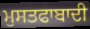
ਮੁਸਤਫਾਬਾਦੀ